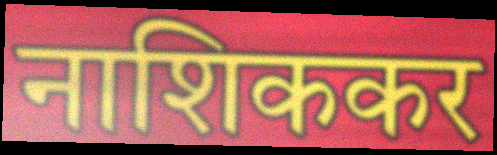
नाशिककर